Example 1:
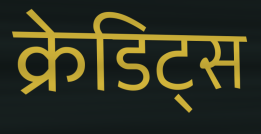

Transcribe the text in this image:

क्रेडिट्स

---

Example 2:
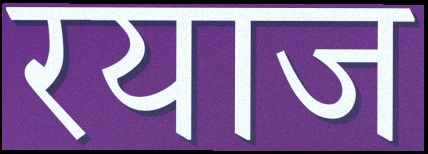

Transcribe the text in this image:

रयाज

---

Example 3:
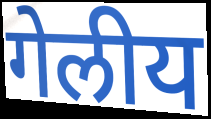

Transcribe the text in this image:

गेलीय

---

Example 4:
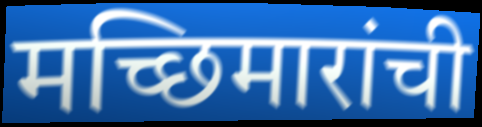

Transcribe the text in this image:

मच्छिमारांची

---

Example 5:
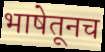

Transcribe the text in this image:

भाषेतूनच